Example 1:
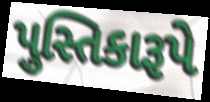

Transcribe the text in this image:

પુસ્તિકારૂપે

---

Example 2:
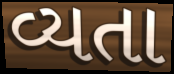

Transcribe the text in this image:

વ્યતા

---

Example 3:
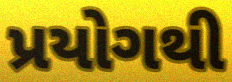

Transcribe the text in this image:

પ્રયોગથી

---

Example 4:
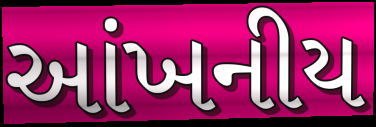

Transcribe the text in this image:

આંખનીય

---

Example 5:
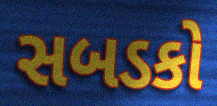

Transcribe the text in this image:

સબડકો